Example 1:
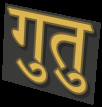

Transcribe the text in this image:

गुतु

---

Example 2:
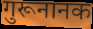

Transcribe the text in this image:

गुरूनानक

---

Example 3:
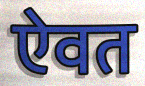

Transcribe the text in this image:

ऐवत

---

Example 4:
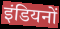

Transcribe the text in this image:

इंडियनों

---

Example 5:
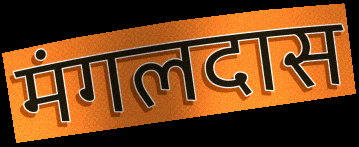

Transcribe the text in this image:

मंगलदास